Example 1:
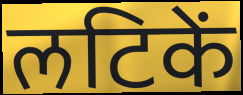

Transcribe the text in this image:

लटिकें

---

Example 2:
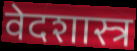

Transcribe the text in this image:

वेदशास्त्र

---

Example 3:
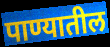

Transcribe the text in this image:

पाण्यातील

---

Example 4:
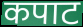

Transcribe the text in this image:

कपाट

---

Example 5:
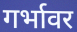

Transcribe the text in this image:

गर्भावर